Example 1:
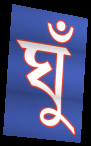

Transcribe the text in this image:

ঘুঁ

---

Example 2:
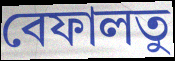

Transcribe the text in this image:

বেফালতু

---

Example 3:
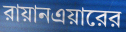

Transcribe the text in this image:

রায়ানএয়ারের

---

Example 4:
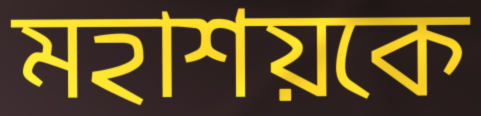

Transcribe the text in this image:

মহাশয়কে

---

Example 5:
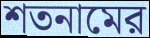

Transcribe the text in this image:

শতনামের